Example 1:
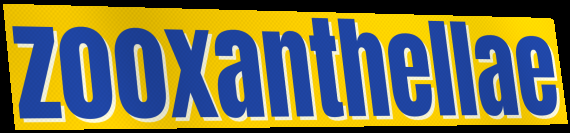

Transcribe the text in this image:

zooxanthellae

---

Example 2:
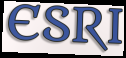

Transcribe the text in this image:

ESRI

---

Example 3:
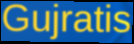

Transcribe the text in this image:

Gujratis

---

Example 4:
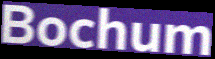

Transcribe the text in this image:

Bochum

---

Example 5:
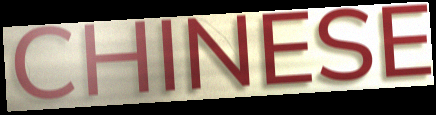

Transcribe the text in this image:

CHINESE